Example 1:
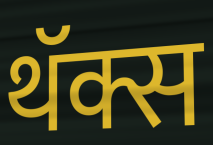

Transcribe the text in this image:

थॅक्स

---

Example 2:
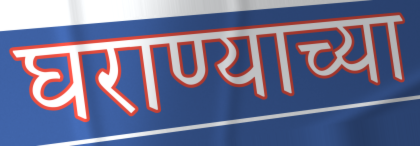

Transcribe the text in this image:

घराण्याच्या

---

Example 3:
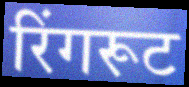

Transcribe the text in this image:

रिंगरूट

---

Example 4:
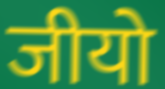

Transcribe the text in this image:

जीयो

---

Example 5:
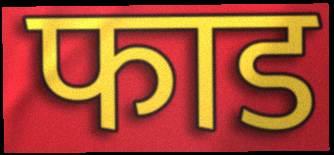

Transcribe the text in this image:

फाड